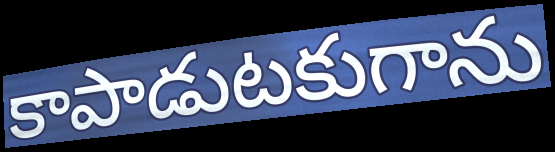
కాపాడుటకుగాను